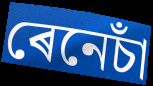
ৰেনেচাঁ